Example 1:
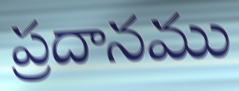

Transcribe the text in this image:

ప్రదానము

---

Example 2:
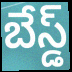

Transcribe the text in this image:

బేస్డ్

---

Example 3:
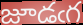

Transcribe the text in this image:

జూడఁగ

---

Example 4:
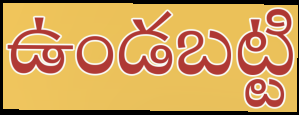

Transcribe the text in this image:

ఉండబట్టి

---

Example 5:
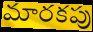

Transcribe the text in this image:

మారకపు